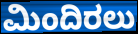
ಮಿಂದಿರಲು